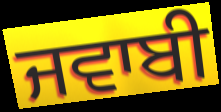
ਜਵਾਬੀ